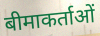
बीमाकर्ताओं